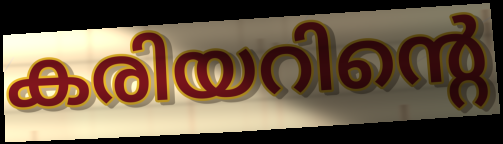
കരിയറിന്റെ